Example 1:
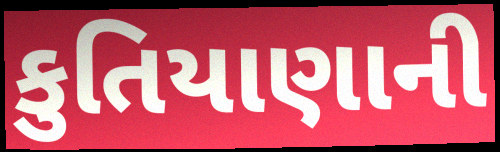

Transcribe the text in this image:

કુતિયાણાની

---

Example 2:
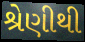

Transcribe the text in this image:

શ્રેણીથી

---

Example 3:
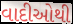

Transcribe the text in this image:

વાદીઓથી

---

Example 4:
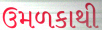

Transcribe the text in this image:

ઉમળકાથી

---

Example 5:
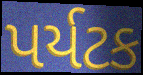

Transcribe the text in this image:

પર્યટક